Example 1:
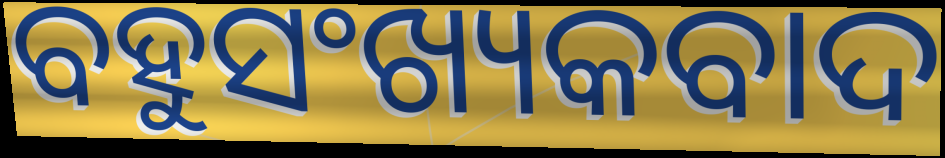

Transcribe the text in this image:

ବହୁସଂଖ୍ୟକବାଦ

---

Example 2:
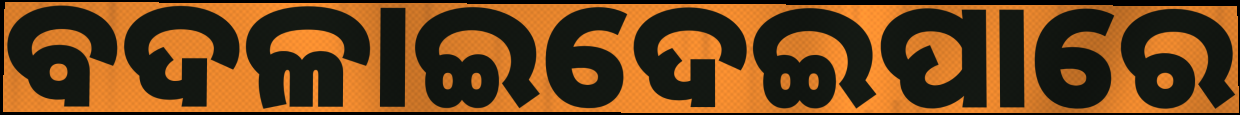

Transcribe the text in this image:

ବଦଳାଇଦେଇପାରେ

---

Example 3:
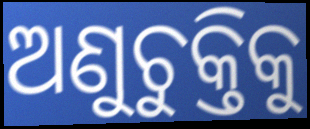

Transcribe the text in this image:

ଅଣୁଚୁକ୍ତିକୁ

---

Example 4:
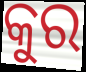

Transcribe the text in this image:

କୁର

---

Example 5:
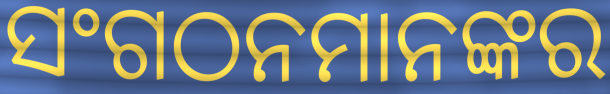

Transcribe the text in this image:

ସଂଗଠନମାନଙ୍କର